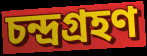
চন্দ্রগ্রহণ